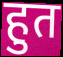
हुत